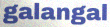
galangal